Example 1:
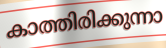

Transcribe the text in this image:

കാത്തിരിക്കുന്നാ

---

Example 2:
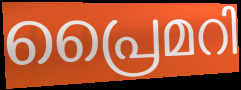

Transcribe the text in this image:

പ്രൈമറി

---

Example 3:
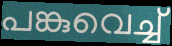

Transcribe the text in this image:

പങ്കുവെച്ച്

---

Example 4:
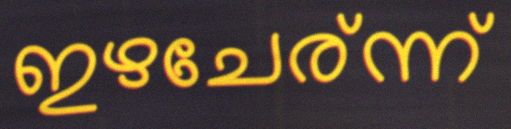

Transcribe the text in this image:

ഇഴചേര്ന്ന്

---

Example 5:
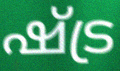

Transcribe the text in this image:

ഷ്ട്ര